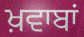
ਖ਼ਵਾਬਾਂ